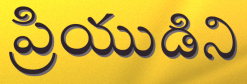
ప్రియుడిని